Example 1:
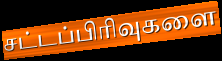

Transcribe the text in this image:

சட்டப்பிரிவுகளை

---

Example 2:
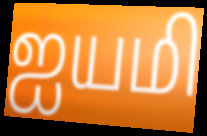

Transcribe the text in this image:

ஐயமி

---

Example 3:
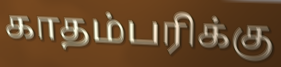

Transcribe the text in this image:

காதம்பரிக்கு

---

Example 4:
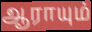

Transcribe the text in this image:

ஆராயும்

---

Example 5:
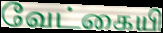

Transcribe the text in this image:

வேட்கையி